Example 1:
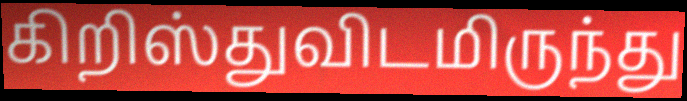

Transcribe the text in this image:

கிறிஸ்துவிடமிருந்து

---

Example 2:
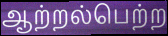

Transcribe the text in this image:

ஆற்றல்பெற்ற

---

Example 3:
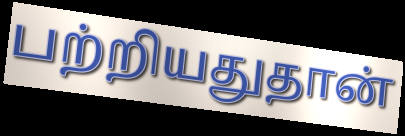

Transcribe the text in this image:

பற்றியதுதான்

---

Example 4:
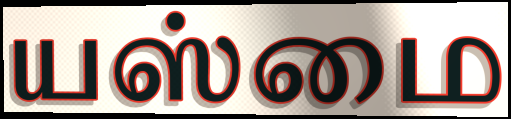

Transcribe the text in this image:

யஸ்மை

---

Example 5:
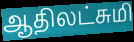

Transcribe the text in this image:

ஆதிலட்சுமி